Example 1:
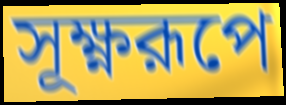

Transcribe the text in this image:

সূক্ষ্ণরূপে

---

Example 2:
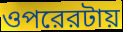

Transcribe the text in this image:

ওপরেরটায়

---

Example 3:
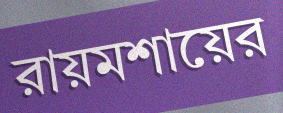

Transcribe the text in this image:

রায়মশায়ের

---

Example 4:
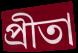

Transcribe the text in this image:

প্রীতা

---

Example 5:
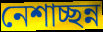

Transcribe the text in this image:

নেশাচ্ছন্ন